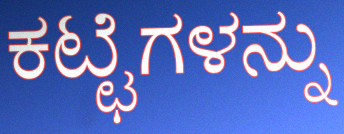
ಕಟ್ಟೆಗಳನ್ನು